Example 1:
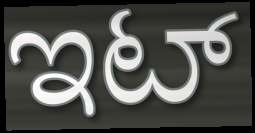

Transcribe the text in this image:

ಇಟ್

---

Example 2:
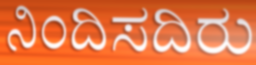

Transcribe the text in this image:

ನಿಂದಿಸದಿರು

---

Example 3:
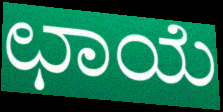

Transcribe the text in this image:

ಛಾಯೆ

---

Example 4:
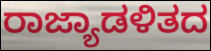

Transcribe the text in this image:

ರಾಜ್ಯಾಡಳಿತದ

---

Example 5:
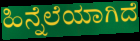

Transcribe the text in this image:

ಹಿನ್ನೆಲೆಯಾಗಿದೆ